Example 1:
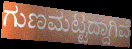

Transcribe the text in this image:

ಗುಣಮಟ್ಟದ್ದಾಗಿವೆ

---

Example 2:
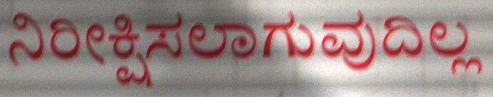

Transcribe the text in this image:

ನಿರೀಕ್ಷಿಸಲಾಗುವುದಿಲ್ಲ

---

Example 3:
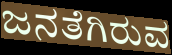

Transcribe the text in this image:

ಜನತೆಗಿರುವ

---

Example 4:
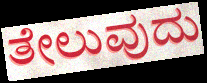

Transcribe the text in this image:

ತೇಲುವುದು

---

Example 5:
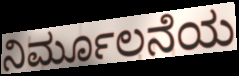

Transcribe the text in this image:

ನಿರ್ಮೂಲನೆಯ